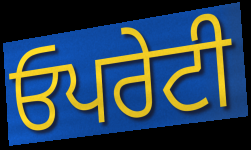
ਓਪਰੇਟੀ